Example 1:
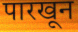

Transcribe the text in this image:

पारखून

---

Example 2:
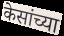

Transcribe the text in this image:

केसांच्या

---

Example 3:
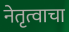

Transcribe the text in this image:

नेतृत्वाचा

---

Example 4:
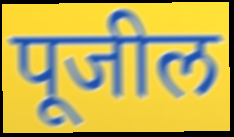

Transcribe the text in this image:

पूजील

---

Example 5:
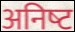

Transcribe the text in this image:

अनिष्‍ट